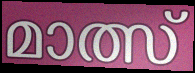
മാത്സ്